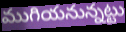
ముగియనున్నట్టు